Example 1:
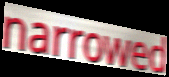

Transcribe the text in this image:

narrowed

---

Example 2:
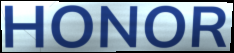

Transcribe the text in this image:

HONOR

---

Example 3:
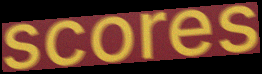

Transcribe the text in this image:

scores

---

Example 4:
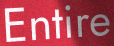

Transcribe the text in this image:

Entire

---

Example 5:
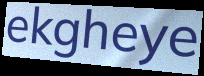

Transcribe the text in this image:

ekgheye